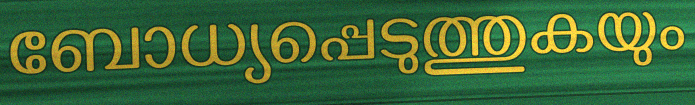
ബോധ്യപ്പെടുത്തുകയും